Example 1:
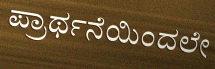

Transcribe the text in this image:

ಪ್ರಾರ್ಥನೆಯಿಂದಲೇ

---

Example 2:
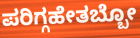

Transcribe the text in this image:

ಪರಿಗ್ಗಹೇತಬ್ಬೋ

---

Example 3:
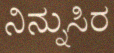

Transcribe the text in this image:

ನಿನ್ನುಸಿರ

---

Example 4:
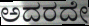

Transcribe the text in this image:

ಅದರದೇ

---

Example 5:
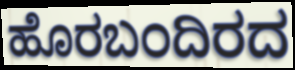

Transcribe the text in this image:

ಹೊರಬಂದಿರದ